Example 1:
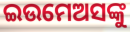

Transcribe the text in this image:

ଇଉମେଅସଙ୍କୁ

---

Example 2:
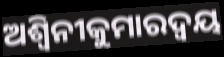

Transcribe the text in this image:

ଅଶ୍ୱିନୀକୁମାରଦ୍ୱୟ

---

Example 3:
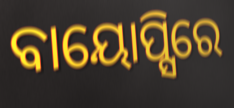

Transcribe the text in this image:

ବାୟୋପ୍ସିରେ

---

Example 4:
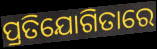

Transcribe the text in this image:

ପ୍ରତିଯୋଗିତାରେ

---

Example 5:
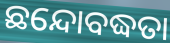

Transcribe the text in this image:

ଛନ୍ଦୋବଦ୍ଧତା